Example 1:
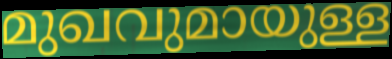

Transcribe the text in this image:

മുഖവുമായുള്ള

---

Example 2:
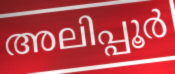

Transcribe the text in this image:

അലിപ്പൂർ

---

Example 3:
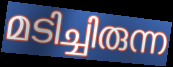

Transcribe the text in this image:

മടിച്ചിരുന്ന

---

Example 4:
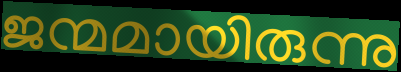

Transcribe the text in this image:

ജന്മമായിരുന്നു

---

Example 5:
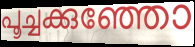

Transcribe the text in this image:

പൂച്ചക്കുഞ്ഞോ